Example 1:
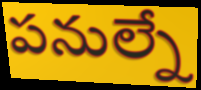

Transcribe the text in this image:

పనుల్నే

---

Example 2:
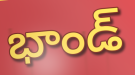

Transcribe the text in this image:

భాండ్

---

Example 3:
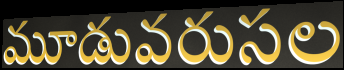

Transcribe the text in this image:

మూడువరుసల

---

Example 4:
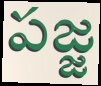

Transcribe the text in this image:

పజ్జ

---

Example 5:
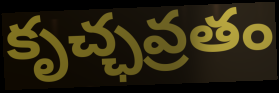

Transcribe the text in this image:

కృచ్ఛవ్రతం